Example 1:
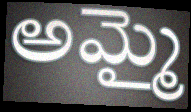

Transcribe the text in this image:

అమ్మై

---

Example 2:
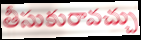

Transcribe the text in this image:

తీసుకురావచ్చు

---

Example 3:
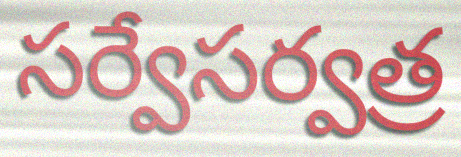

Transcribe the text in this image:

సర్వేసర్వత్ర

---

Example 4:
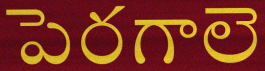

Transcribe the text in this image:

పెరగాలె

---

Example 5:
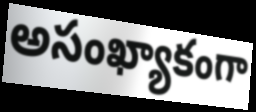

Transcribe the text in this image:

అసంఖ్యాకంగా